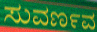
ಸುವರ್ಣವ